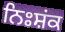
ਨਿਃਸ਼ਂਕ